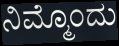
ನಿಮ್ಮೊಂದು